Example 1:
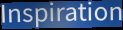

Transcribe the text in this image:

Inspiration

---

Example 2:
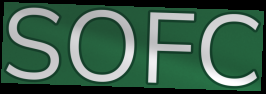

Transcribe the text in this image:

SOFC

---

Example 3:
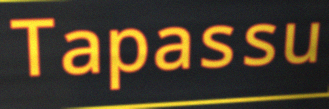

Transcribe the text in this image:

Tapassu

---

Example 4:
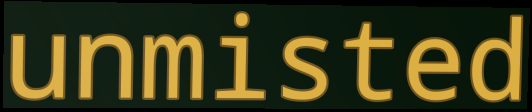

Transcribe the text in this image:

unmisted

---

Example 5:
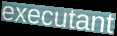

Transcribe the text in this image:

executant